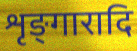
शृङ्गारादि